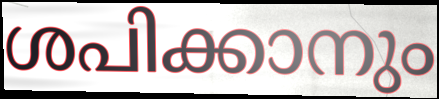
ശപിക്കാനും